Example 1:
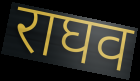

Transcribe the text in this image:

राघव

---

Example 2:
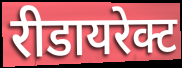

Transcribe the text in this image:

रीडायरेक्ट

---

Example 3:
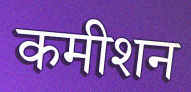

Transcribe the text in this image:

कमीशन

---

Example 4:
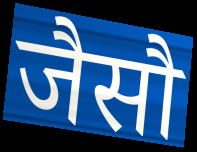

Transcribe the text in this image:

जैसौ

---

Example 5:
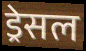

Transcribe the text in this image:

ड्रेसल